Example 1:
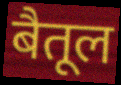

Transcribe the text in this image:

बैतूल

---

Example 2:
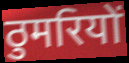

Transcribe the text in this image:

ठुमरियों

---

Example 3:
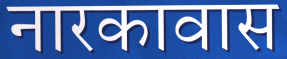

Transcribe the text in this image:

नारकावास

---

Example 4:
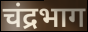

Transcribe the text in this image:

चंद्रभाग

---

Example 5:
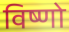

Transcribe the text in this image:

विष्णो